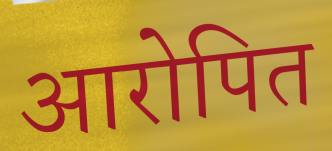
आरोपित